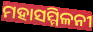
ମହାସମ୍ମିଳନୀ